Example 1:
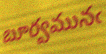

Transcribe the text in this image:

బూర్వమునఁ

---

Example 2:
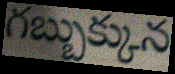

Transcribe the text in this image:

గబ్బుక్కున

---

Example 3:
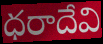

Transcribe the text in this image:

ధరాదేవి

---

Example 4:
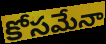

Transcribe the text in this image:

కోసమేనా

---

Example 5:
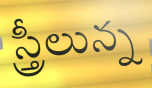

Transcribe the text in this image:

స్త్రీలున్న